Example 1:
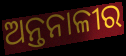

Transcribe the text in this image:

ଅନ୍ତନାଳୀର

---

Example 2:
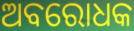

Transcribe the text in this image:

ଅବରୋଧକ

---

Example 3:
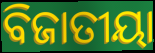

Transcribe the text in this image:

ବିଜାତୀୟା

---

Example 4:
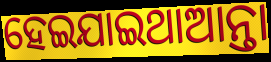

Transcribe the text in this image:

ହେଇଯାଇଥାଆନ୍ତା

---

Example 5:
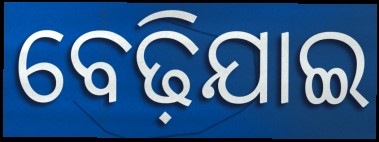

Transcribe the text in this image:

ବେଢ଼ିଯାଇ